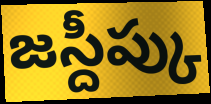
జస్దీప్కు